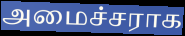
அமைச்சராக